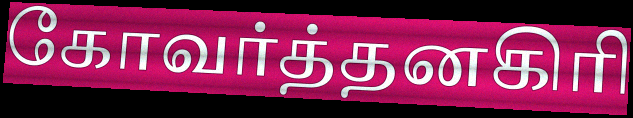
கோவர்த்தனகிரி